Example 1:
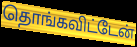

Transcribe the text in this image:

தொங்கவிட்டேன்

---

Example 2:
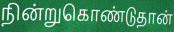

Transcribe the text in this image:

நின்றுகொண்டுதான்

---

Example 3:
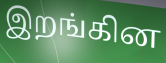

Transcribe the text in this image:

இறங்கின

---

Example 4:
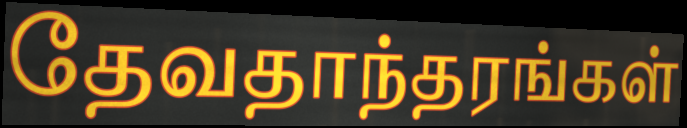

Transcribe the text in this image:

தேவதாந்தரங்கள்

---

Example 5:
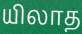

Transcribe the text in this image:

யிலாத